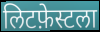
लिटफ़ेस्टला